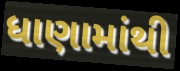
ધાણામાંથી